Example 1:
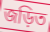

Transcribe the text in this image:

জড়িত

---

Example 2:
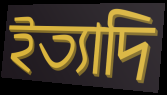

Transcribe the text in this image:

ইত্যাদি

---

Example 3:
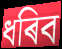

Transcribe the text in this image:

ধৰিব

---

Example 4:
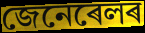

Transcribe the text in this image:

জেনেৰেলৰ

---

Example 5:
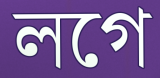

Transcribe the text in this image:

লগে